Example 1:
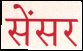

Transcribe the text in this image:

सेंसर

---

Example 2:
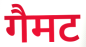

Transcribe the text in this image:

गैमट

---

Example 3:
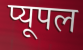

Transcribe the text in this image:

प्यूपल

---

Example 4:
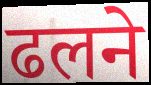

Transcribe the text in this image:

ढलने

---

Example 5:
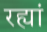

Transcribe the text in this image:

रह्यां